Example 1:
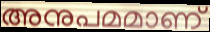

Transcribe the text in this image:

അനുപമമാണ്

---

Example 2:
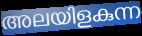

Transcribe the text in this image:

അലയിളകുന്ന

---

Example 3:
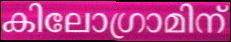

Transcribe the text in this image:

കിലോഗ്രാമിന്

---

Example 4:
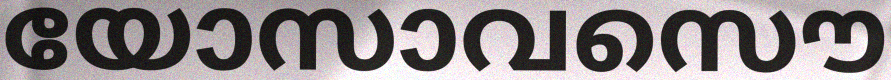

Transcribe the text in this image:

യോസാവസൌ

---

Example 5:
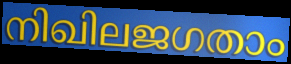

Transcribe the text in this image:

നിഖിലജഗതാം